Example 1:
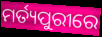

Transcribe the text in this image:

ମର୍ତ୍ୟପୁରୀରେ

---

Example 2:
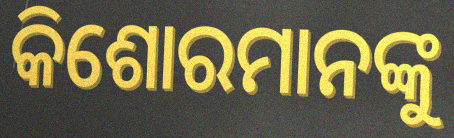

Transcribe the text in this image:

କିଶୋରମାନଙ୍କୁ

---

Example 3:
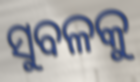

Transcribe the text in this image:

ସୁବଳକୁ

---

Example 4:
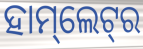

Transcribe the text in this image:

ହାମ୍‌ଲେଟ୍‌ର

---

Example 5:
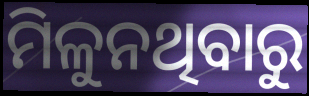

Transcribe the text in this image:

ମିଳୁନଥିବାରୁ